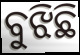
ବୁଝିଛି